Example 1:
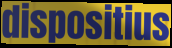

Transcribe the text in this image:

dispositius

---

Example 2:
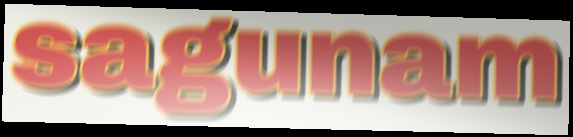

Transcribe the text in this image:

sagunam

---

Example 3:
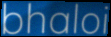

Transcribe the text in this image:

bhaloi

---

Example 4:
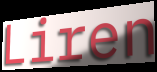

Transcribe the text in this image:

Liren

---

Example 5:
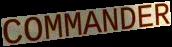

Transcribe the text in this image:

COMMANDER